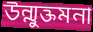
উন্মুক্তমনা